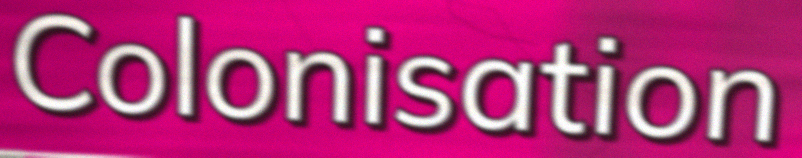
Colonisation